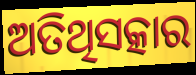
ଅତିଥିସତ୍କାର